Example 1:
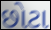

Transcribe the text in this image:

છોટા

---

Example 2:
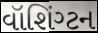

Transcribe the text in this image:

વૉશિંગ્ટન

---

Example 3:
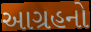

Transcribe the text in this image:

આગ્રહનો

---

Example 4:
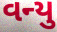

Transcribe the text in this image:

વન્યુ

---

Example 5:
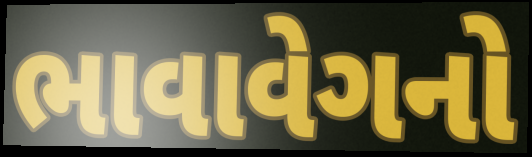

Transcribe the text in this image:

ભાવાવેગનો